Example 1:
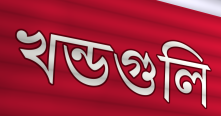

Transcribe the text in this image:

খন্ডগুলি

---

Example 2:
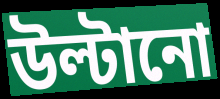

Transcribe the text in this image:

উল্টানো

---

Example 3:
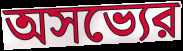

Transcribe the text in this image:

অসভ্যের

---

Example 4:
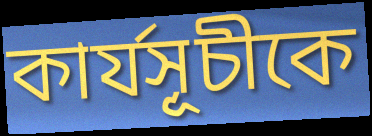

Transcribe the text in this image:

কার্যসূচীকে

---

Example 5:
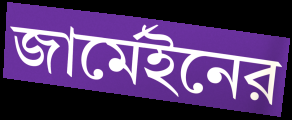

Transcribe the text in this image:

জার্মেইনের